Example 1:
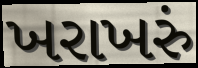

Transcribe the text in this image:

ખરાખરું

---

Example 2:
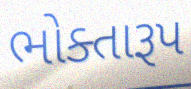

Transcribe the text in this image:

ભોક્તારૂપ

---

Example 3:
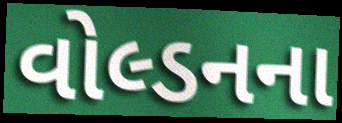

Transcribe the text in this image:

વોલ્ડનના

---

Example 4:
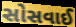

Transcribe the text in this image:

સોસવાઈ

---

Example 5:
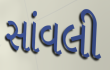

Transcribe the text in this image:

સાંવલી